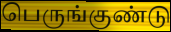
பெருங்குண்டு